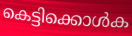
കെട്ടിക്കൊൾക